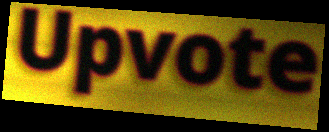
Upvote